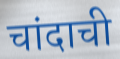
चांदाची